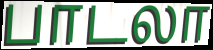
பாடலா